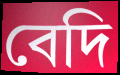
বেদি